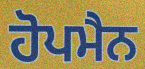
ਹੋਪਮੈਨ